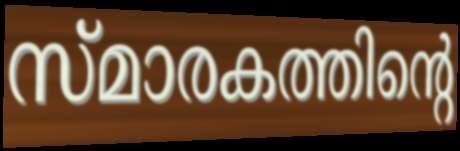
സ്മാരകത്തിന്റെ